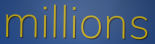
millions